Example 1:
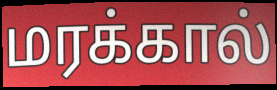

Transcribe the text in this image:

மரக்கால்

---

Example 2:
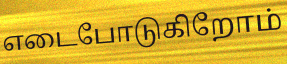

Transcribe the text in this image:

எடைபோடுகிறோம்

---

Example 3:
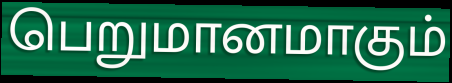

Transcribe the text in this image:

பெறுமானமாகும்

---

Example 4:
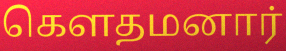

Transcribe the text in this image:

கெளதமனார்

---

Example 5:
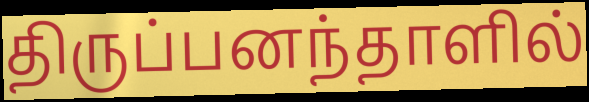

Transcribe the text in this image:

திருப்பனந்தாளில்